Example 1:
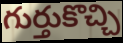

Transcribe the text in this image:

గుర్తుకొచ్చి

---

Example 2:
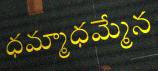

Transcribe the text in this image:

ధమ్మాధమ్మేన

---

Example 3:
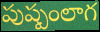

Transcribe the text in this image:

పుష్పంలాగ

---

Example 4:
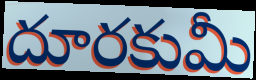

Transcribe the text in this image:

దూరకుమీ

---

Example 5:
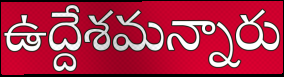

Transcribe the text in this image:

ఉద్దేశమన్నారు